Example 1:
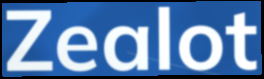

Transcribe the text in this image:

Zealot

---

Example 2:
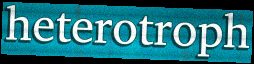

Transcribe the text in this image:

heterotroph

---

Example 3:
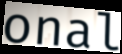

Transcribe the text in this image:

onal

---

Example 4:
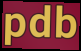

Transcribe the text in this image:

pdb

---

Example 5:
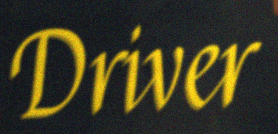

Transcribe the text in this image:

Driver